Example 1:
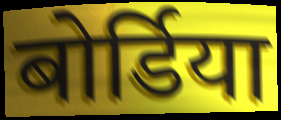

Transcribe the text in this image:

बोर्डिया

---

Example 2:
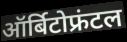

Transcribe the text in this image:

ऑर्बिटोफ्रंटल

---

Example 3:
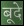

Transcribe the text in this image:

बूदे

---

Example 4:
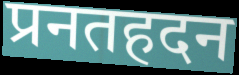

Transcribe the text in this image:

प्रनतहदन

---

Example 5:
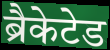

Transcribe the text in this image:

ब्रैकेटेड